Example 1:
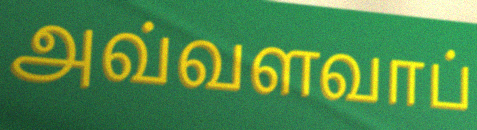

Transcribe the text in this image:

அவ்வளவாப்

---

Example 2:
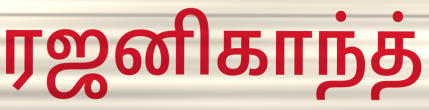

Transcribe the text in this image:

ரஜனிகாந்த்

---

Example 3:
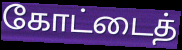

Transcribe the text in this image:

கோட்டைத்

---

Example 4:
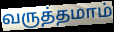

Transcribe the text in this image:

வருத்தமாம்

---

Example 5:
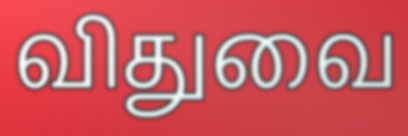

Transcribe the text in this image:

விதுவை